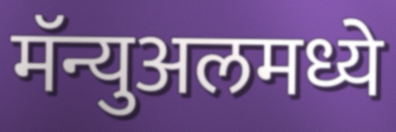
मॅन्युअलमध्ये